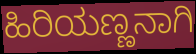
ಹಿರಿಯಣ್ಣನಾಗಿ